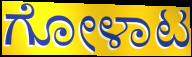
ಗೋಳಾಟ